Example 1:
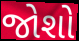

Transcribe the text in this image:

જોશો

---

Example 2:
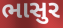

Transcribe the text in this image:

ભાસુર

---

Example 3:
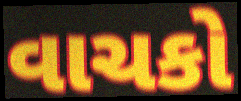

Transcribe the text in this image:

વાચકો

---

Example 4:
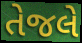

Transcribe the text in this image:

તેજલે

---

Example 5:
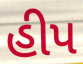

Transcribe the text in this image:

હીપ